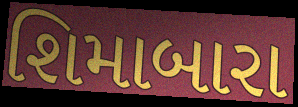
શિમાબારા